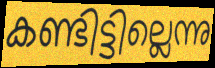
കണ്ടിട്ടില്ലെന്നു